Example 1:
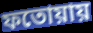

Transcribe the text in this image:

ফতোয়ায়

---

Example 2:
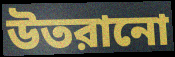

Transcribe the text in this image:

উতরানো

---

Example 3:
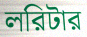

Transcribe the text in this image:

লরিটার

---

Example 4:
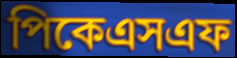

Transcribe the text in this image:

পিকেএসএফ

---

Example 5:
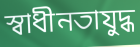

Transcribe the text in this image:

স্বাধীনতাযুদ্ধ